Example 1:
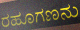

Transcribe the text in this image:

ರಹೂಗಣನು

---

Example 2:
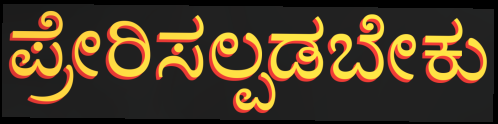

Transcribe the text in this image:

ಪ್ರೇರಿಸಲ್ಪಡಬೇಕು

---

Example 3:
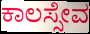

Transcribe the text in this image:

ಕಾಲಸ್ಸೇವ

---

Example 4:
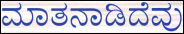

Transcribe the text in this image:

ಮಾತನಾಡಿದೆವು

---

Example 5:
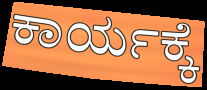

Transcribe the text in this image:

ಕಾರ್ಯಕ್ಕೆ